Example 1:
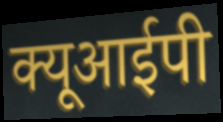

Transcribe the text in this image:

क्यूआईपी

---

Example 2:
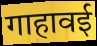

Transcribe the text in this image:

गाहावई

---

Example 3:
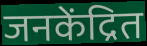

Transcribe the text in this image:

जनकेंद्रित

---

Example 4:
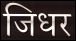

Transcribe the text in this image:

जिधर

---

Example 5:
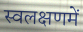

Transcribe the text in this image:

स्वलक्षणमें